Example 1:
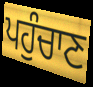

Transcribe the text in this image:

ਪਹੁੰਚਾਣ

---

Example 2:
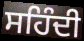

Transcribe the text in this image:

ਸਹਿੰਦੀ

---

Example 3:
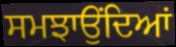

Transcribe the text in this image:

ਸਮਝਾਉਂਦਿਆਂ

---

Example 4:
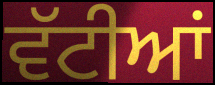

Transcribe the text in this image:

ਵੱਟੀਆਂ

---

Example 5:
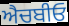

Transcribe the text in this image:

ਐਚਬੀਓ